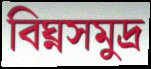
বিঘ্নসমুদ্র